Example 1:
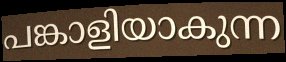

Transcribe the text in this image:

പങ്കാളിയാകുന്ന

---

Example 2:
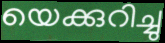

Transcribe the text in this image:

യെക്കുറിച്ചു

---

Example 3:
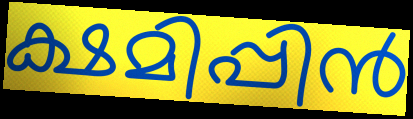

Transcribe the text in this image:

ക്ഷമിപ്പിൻ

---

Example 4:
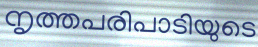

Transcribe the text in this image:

നൃത്തപരിപാടിയുടെ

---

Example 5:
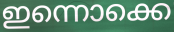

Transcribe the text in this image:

ഇന്നൊക്കെ